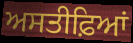
ਅਸਤੀਫ਼ਿਆਂ